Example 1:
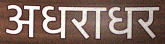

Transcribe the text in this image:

अधराधर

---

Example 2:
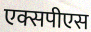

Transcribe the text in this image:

एक्सपीएस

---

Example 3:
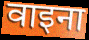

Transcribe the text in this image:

वाइना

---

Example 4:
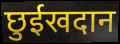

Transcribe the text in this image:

छुईखदान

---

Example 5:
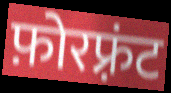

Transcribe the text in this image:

फ़ोरफ़्रंट